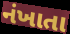
નંખાતા